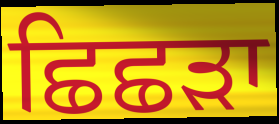
ਛਿਛੜਾ